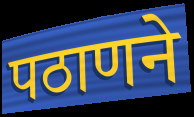
पठाणने